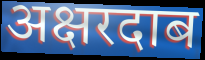
अक्षरदाब